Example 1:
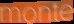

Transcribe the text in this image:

monte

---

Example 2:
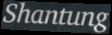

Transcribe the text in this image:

Shantung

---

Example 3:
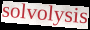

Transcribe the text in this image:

solvolysis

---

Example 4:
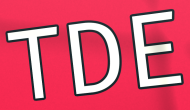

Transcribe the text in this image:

TDE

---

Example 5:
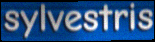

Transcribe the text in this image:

sylvestris